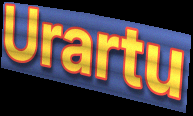
Urartu